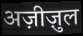
अज़ीज़ुल